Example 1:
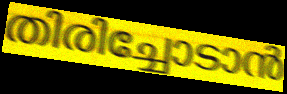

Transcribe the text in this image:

തിരിച്ചോടാൻ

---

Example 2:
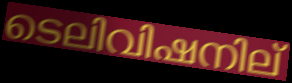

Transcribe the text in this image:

ടെലിവിഷനില്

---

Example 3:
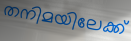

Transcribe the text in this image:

തനിമയിലേക്ക്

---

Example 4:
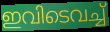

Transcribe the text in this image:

ഇവിടെവച്ച്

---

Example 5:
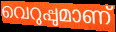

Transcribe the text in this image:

വെറുപ്പുമാണ്